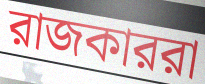
রাজকাররা